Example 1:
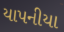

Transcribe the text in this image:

યાપનીયા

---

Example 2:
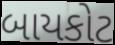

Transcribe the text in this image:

બાયકોટ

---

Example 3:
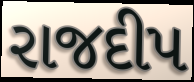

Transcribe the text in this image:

રાજદીપ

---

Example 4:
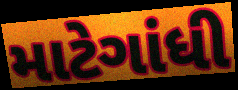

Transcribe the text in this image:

માટેગાંધી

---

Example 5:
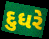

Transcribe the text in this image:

દુધરે